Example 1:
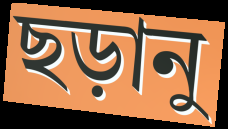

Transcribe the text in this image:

ছড়ানু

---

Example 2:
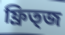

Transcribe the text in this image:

ফ্রিত্জ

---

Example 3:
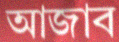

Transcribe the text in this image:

আজাব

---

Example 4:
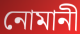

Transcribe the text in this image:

নোমানী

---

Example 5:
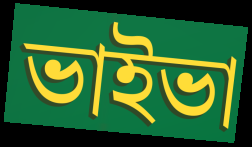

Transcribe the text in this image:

ভাইভা